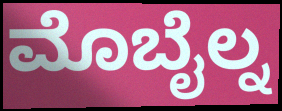
ಮೊಬೈಲ್ನ